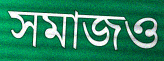
সমাজও